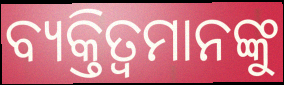
ବ୍ୟକ୍ତିତ୍ବମାନଙ୍କୁ